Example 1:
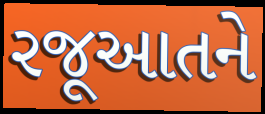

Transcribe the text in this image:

રજૂઆતને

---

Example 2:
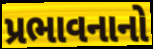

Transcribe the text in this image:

પ્રભાવનાનો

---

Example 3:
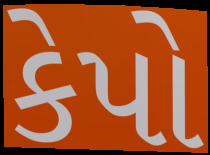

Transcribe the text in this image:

કેપો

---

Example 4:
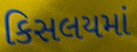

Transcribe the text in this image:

કિસલયમાં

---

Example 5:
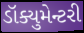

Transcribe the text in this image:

ડૉક્યુમેન્ટરી